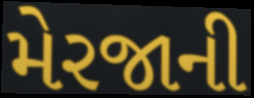
મેરજાની